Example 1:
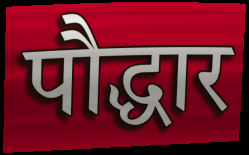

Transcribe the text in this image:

पौद्धार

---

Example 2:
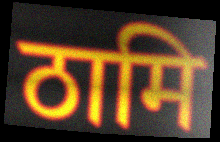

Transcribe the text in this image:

ठामि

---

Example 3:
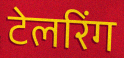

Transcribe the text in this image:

टेलरिंग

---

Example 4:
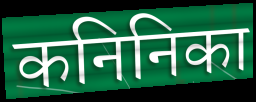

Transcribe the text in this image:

कनिनिका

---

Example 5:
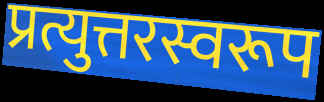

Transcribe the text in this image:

प्रत्युत्तरस्वरूप